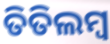
ତିତିଲମ୍ଵ